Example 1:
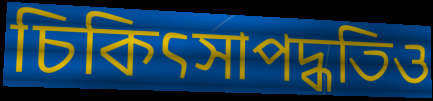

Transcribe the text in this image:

চিকিৎসাপদ্ধতিও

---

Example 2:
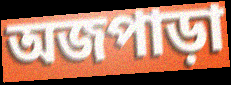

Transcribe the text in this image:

অজপাড়া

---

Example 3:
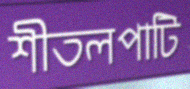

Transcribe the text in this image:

শীতলপাটি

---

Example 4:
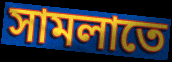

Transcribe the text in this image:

সামলাতে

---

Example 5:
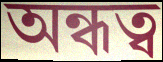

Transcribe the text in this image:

অন্ধত্ব